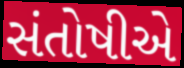
સંતોષીએ